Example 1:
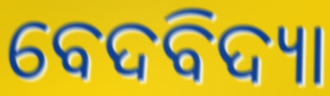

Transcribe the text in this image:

ବେଦବିଦ୍ୟା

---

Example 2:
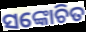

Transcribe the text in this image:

ସଙ୍କୋଚିତ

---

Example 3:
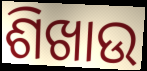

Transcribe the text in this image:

ଶିଖାଉ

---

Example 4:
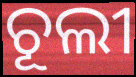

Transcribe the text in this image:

ଚୂଲୀ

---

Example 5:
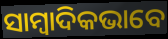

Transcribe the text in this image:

ସାମ୍ୱାଦିକଭାବେ